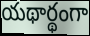
యథార్థంగా